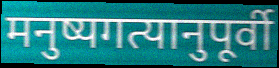
मनुष्यगत्यानुपूर्वी